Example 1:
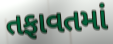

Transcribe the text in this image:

તફાવતમાં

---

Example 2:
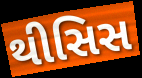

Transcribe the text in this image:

થીસિસ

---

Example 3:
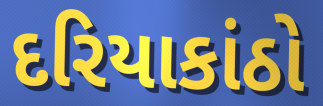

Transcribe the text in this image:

દરિયાકાંઠો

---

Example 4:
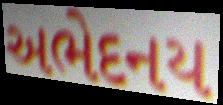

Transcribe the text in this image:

અભેદનય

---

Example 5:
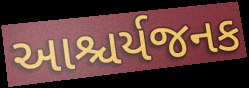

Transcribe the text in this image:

આશ્ચર્યજનક